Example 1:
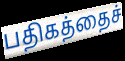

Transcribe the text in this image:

பதிகத்தைச்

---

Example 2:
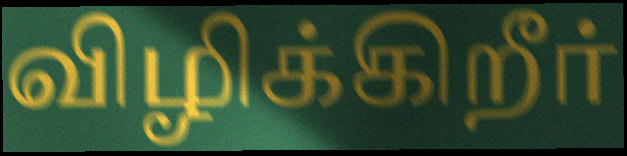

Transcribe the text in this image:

விழிக்கிறீர்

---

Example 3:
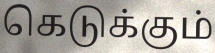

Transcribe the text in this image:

கெடுக்கும்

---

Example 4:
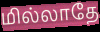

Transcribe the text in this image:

மில்லாதே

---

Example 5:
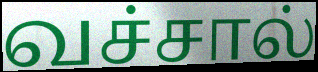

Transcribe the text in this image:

வச்சால்